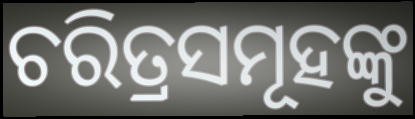
ଚରିତ୍ରସମୂହଙ୍କୁ